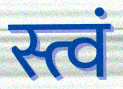
स्त्वं